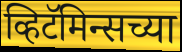
व्हिटॅमिन्सच्या